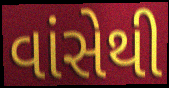
વાંસેથી